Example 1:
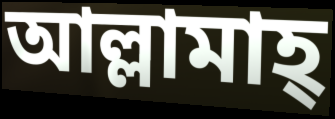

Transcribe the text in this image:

আল্লামাহ্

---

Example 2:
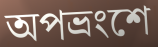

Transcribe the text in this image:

অপভ্রংশে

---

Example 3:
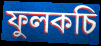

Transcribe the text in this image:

ফুলকচি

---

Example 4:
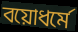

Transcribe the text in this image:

বয়োধর্মে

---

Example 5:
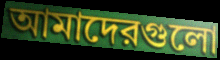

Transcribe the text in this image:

আমাদেরগুলো